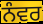
ਨੰਵਰ